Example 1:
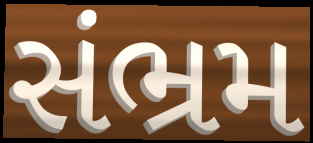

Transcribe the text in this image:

સંભ્રમ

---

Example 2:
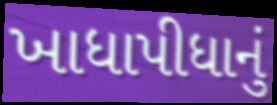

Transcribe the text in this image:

ખાધાપીધાનું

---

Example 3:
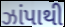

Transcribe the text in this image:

ઝાંપાથી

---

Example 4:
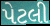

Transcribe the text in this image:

પેટલી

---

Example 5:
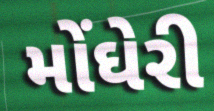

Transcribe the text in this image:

મોંઘેરી